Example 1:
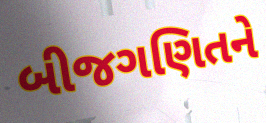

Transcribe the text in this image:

બીજગણિતને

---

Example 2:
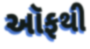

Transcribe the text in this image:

ઑફથી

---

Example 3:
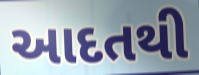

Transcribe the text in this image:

આદતથી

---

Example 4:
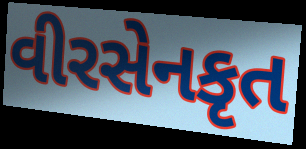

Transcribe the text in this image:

વીરસેનકૃત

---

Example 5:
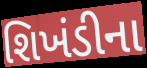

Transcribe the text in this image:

શિખંડીના